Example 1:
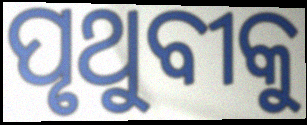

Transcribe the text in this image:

ପୃଥୁବୀକୁ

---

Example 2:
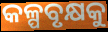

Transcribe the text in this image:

କଳ୍ପବୃକ୍ଷକୁ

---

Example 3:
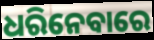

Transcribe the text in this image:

ଧରିନେବାରେ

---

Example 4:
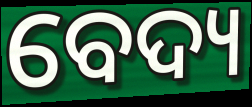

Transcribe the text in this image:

ବେଦ୍ୟ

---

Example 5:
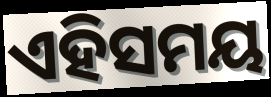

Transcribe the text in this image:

ଏହିସମୟ